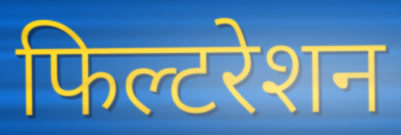
फिल्टरेशन